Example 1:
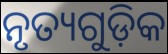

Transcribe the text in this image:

ନୃତ୍ୟଗୁଡ଼ିକ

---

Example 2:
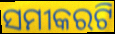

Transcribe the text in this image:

ସମୀକରଟି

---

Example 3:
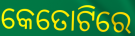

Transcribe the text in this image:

କେତୋଟିରେ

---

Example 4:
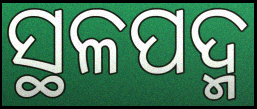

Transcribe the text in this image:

ସ୍ଥଳପଦ୍ମ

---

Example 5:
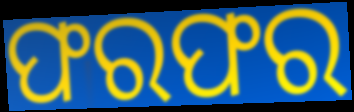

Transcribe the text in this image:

ଫରଫର